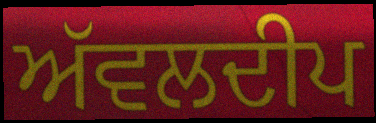
ਅੱਵਲਦੀਪ